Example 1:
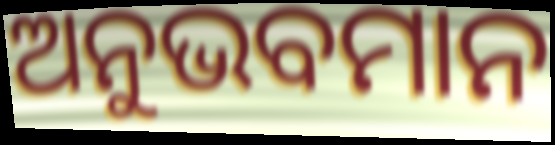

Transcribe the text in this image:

ଅନୁଭବମାନ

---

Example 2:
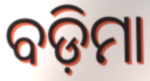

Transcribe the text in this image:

ବଡ଼ିମା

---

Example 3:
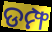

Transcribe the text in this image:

ଡମ୍ଫ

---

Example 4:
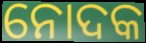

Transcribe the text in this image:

ନୋଦକ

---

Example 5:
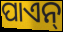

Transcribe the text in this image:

ପାଏନ୍